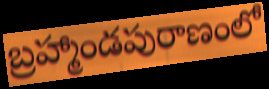
బ్రహ్మాండపురాణంలో